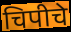
चिपीचे